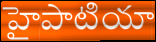
హైపాటియా